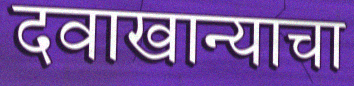
दवाखान्याचा